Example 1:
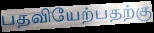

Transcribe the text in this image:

பதவியேற்பதற்கு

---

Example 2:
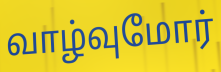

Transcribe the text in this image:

வாழ்வுமோர்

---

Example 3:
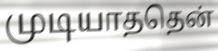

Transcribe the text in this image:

முடியாததென்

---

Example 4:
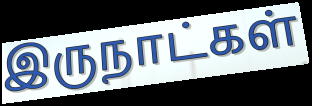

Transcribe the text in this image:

இருநாட்கள்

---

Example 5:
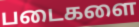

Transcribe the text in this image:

படைகளை